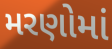
મરણોમાં